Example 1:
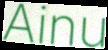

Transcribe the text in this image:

Ainu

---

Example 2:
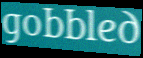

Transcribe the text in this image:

gobbled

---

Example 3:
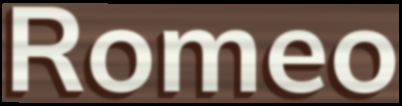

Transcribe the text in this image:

Romeo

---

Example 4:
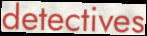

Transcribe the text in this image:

detectives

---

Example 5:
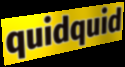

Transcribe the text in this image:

quidquid